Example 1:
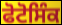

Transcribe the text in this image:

ਫੋਟੋਸਿੰਕ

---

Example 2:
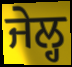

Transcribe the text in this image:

ਜੇਲ੍ਹ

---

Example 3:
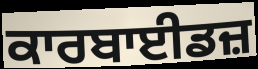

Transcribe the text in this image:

ਕਾਰਬਾਈਡਜ਼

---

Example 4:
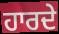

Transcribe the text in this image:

ਹਾਰਦੇ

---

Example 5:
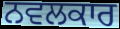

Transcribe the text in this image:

ਨਵਲਕਾਰ